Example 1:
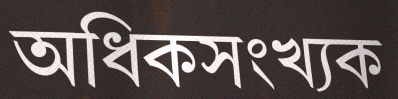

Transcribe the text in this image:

অধিকসংখ্যক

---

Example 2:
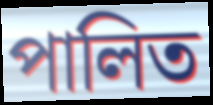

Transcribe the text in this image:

পালিত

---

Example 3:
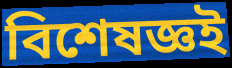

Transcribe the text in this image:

বিশেষজ্ঞই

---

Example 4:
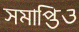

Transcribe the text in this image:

সমাপ্তিও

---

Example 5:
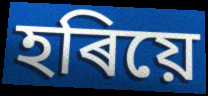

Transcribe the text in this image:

হৰিয়ে